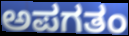
ಅಪಗತಂ